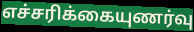
எச்சரிக்கையுணர்வு